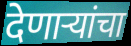
देणाऱ्यांचा